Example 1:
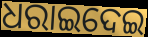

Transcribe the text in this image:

ଧରାଇଦେଇ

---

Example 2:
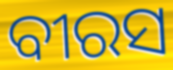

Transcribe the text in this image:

ବୀରସ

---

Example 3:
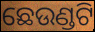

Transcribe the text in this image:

ଛେଉଣ୍ଡଟି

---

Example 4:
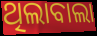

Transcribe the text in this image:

ଥିଲାବାଲା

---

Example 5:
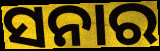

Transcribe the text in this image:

ସନାର